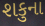
શકુના